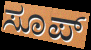
ಸೂಪ್